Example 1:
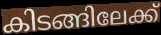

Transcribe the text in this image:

കിടങ്ങിലേക്ക്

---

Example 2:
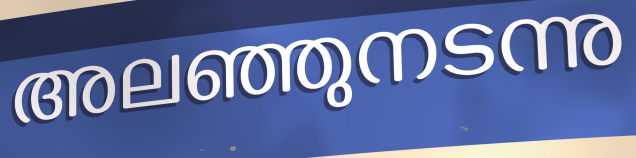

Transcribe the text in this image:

അലഞ്ഞുനടന്നു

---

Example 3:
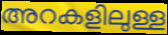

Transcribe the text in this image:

അറകളിലുള്ള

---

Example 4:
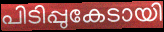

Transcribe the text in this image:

പിടിപ്പുകേടായി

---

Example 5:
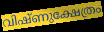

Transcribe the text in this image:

വിഷ്ണുക്ഷേത്രം